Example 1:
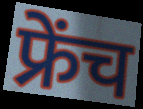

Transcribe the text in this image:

फ्रेंच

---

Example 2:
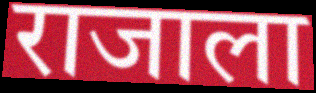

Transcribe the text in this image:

राजाला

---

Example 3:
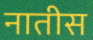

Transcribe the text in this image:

नातीस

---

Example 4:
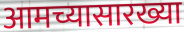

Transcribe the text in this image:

आमच्यासारख्या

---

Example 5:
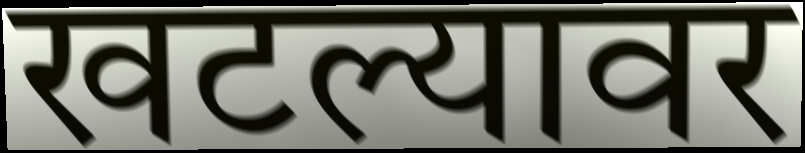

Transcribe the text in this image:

खटल्यावर